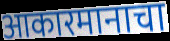
आकारमानाचा